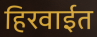
हिरवाईत